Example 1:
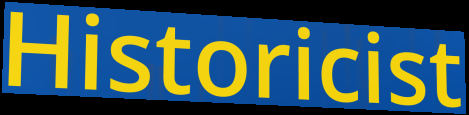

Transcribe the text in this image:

Historicist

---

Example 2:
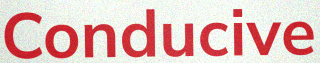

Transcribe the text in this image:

Conducive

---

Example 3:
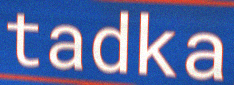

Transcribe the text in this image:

tadka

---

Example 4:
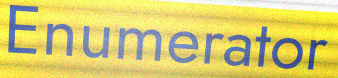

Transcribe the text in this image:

Enumerator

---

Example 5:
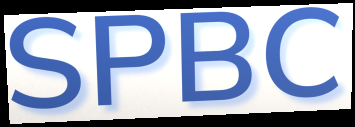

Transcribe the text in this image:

SPBC